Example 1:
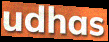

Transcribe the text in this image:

udhas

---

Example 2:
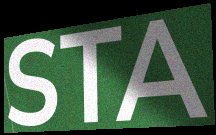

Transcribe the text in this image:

STA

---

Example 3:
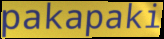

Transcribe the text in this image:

pakapaki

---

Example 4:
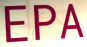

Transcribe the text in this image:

EPA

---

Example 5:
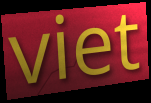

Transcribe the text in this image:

viet